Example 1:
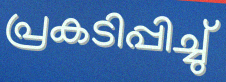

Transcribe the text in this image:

പ്രകടിപ്പിച്ചു്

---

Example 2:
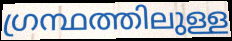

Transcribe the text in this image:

ഗ്രന്ഥത്തിലുള്ള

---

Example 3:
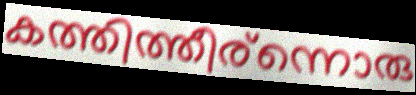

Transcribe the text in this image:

കത്തിത്തീര്ന്നൊരു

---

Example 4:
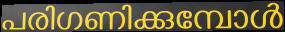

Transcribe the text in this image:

പരിഗണിക്കുമ്പോൾ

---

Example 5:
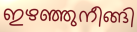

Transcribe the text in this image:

ഇഴഞ്ഞുനീങ്ങി